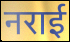
नराई